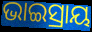
ଭାଇସ୍ରାୟ